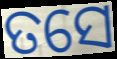
ତସେ